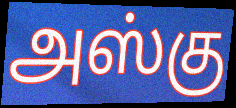
அஸ்கு